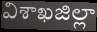
విశాఖజిల్లా